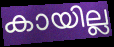
കായില്ല